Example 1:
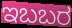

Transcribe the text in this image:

ಇಬಬರ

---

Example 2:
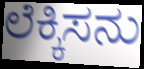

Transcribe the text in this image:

ಲೆಕ್ಕಿಸನು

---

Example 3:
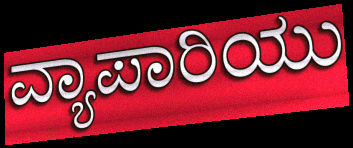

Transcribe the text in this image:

ವ್ಯಾಪಾರಿಯು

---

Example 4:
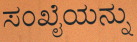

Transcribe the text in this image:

ಸಂಖೈಯನ್ನು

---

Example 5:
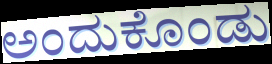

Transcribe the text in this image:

ಅಂದುಕೊಂಡು